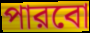
পারবো